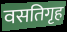
वसतिगृह